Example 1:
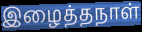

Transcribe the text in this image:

இழைத்தநாள்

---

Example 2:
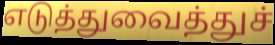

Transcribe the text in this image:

எடுத்துவைத்துச்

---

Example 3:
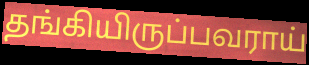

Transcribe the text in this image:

தங்கியிருப்பவராய்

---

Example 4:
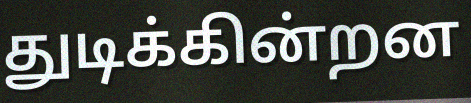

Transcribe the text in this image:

துடிக்கின்றன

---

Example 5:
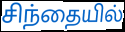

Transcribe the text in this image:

சிந்தையில்